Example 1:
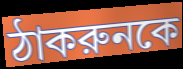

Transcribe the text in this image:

ঠাকরুনকে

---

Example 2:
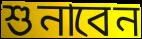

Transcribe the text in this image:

শুনাবেন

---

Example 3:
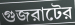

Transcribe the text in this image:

গুজরাটের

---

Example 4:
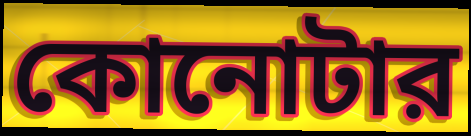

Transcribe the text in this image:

কোনোটার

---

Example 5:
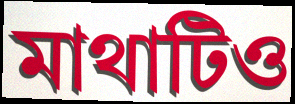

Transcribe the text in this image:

মাথাটিও